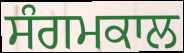
ਸੰਗਮਕਾਲ